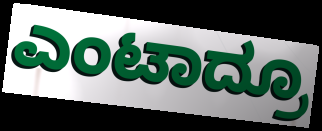
ಎಂಟಾದ್ರೂ